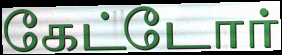
கேட்டோர்